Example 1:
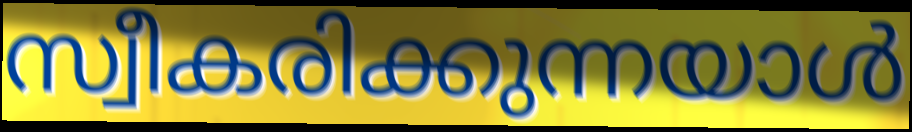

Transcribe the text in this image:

സ്വീകരിക്കുന്നയാൾ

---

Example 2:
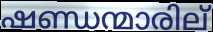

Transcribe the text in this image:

ഷണ്ഡന്മാരില്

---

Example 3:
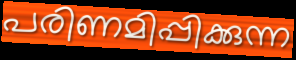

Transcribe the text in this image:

പരിണമിപ്പിക്കുന്ന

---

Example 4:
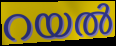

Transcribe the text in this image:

റയൽ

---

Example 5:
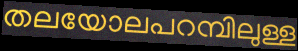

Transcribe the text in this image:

തലയോലപറമ്പിലുള്ള